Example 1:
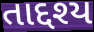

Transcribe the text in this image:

તાદ્દશ્ય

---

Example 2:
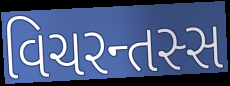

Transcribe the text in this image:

વિચરન્તસ્સ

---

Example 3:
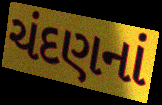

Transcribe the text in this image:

ચંદણનાં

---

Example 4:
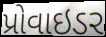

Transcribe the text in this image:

પ્રોવાઇડર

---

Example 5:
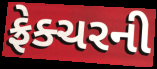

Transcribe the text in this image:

ફ્રેક્ચરની